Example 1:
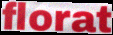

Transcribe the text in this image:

florat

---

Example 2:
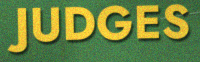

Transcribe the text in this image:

JUDGES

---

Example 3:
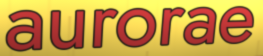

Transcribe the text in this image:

aurorae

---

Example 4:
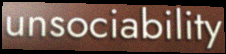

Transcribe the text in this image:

unsociability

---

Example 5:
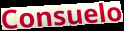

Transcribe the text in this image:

Consuelo